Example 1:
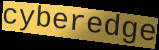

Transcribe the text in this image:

cyberedge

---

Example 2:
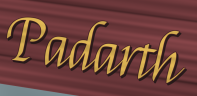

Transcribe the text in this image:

Padarth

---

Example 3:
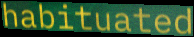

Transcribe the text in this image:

habituated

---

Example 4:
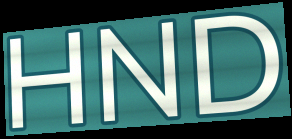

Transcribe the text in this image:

HND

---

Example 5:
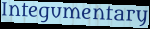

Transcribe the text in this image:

Integumentary